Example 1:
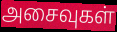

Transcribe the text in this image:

அசைவுகள்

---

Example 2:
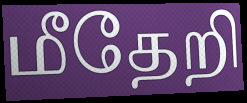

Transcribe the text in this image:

மீதேறி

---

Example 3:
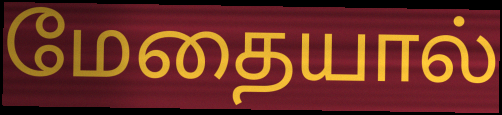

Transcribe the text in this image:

மேதையால்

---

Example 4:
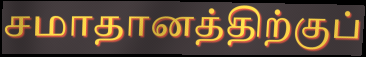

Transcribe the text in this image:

சமாதானத்திற்குப்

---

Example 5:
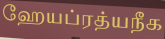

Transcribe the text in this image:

ஹேயப்ரத்யநீக